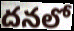
దనలో